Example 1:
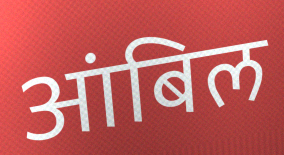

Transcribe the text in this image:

आंबिल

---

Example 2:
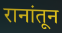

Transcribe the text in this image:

रानांतून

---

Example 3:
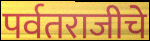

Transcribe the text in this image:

पर्वतराजीचे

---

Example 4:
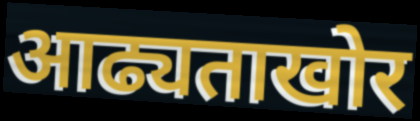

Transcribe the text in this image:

आढ्यताखोर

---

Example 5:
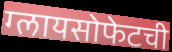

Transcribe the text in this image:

ग्लायसोफेटची